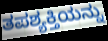
ತಪಶ್ಯಕ್ತಿಯನ್ನು